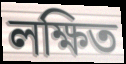
লক্ষিত